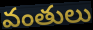
వంతులు